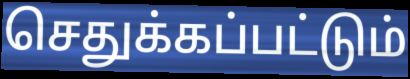
செதுக்கப்பட்டும்